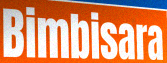
Bimbisara